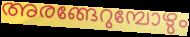
അരങ്ങേറുമ്പോഴും